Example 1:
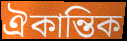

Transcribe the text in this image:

ঐকান্তিক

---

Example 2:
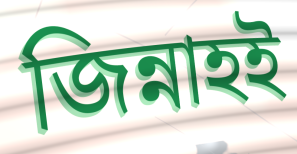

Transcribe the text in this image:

জিন্নাহই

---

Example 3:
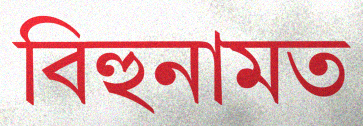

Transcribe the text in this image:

বিহুনামত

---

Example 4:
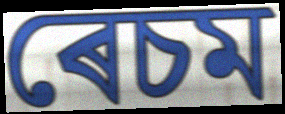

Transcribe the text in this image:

ৰেচম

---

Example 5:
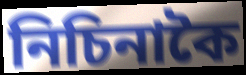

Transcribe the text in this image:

নিচিনাকৈ